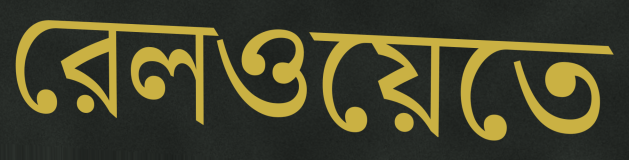
রেলওয়েতে